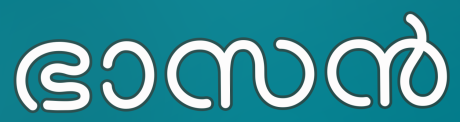
ഭാസൻ